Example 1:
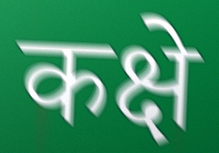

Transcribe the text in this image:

कक्षे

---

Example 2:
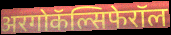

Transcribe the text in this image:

अरगोकॅल्सिफेरॉल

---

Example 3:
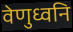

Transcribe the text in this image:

वेणुध्वनि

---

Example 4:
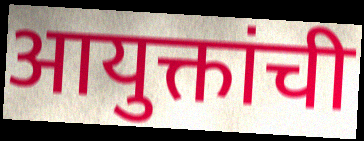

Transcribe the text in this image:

आयुक्तांची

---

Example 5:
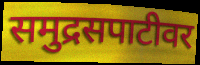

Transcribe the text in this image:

समुद्रसपाटीवर